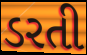
ડરતી